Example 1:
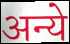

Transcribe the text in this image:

अन्ये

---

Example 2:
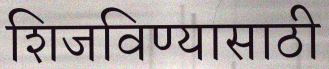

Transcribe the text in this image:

शिजविण्यासाठी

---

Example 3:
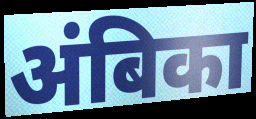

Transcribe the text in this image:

अंबिका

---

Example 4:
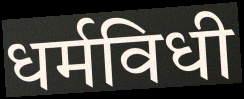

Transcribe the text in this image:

धर्मविधी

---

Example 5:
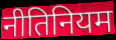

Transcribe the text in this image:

नीतिनियम